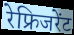
रेफ्रिजरेंट